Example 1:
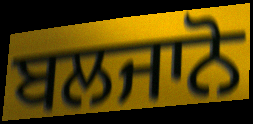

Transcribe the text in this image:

ਬਲਜਾਨੋ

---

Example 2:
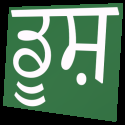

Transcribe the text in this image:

ਡੂਸ਼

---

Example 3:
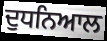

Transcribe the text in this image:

ਦੁਧਨਿਆਲ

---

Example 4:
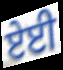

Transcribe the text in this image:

ਏਈ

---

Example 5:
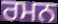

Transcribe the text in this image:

ਰਮਨ